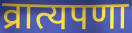
व्रात्यपणा